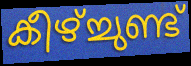
കീഴ്ച്ചുണ്ട്